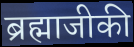
ब्रह्माजीकी